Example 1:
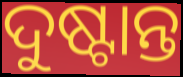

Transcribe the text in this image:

ଦୁଷ୍ଟାନ୍ତ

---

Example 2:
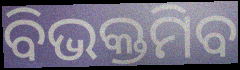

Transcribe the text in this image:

ବିଭକ୍ତମିବ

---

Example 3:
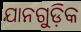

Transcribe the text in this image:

ଯାନଗୁଡ଼ିକ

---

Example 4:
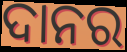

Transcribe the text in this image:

ଦାନର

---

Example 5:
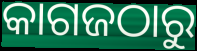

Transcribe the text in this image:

କାଗଜଠାରୁ